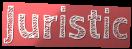
Juristic